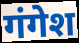
गंगेश